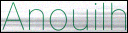
Anouilh